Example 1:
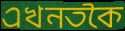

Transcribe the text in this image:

এখনতকৈ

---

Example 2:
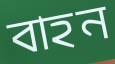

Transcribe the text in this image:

বাহন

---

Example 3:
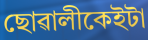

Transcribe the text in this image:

ছোৱালীকেইটা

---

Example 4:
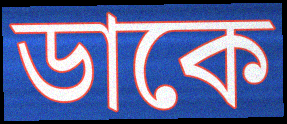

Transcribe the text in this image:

ডাকে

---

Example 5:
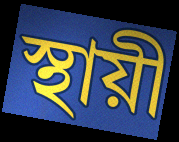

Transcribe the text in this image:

স্থায়ী